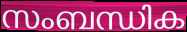
സംബന്ധിക